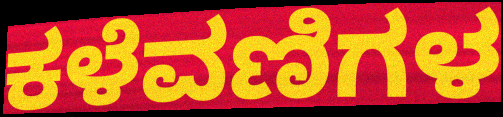
ಕಳೆವಣಿಗಳ